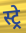
स्ट्रे